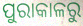
ପୁରାକାଳରୁ